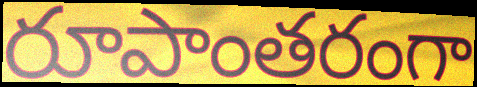
రూపాంతరంగా